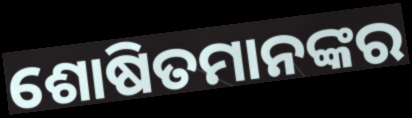
ଶୋଷିତମାନଙ୍କର